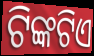
ଟିଙ୍କଟିଏ